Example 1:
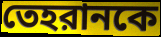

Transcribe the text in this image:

তেহরানকে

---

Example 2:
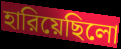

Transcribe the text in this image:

হারিয়েছিলো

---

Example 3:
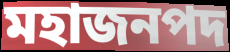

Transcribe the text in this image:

মহাজনপদ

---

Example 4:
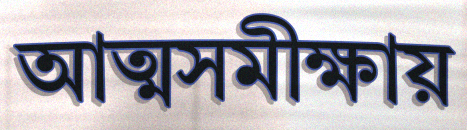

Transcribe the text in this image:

আত্মসমীক্ষায়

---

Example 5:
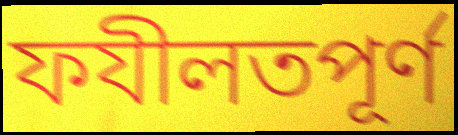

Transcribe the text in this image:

ফযীলতপূর্ণ